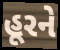
હૂરને